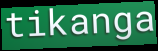
tikanga